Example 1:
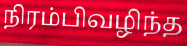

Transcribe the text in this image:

நிரம்பிவழிந்த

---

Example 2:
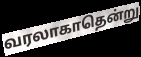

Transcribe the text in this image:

வரலாகாதென்று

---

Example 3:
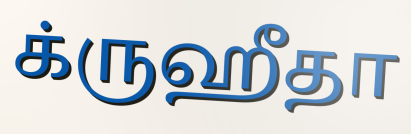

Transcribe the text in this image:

க்ருஹீதா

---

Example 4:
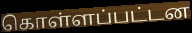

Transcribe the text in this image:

கொள்ளப்பட்டன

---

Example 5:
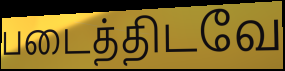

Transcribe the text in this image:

படைத்திடவே